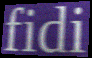
fidi